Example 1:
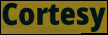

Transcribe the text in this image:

Cortesy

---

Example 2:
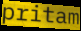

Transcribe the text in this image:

pritam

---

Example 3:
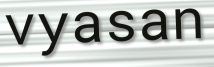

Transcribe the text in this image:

vyasan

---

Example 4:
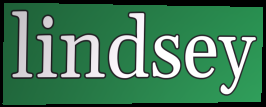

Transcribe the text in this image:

lindsey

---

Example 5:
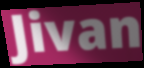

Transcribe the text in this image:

Jivan